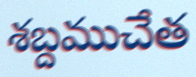
శబ్దముచేత